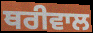
ਥਰੀਵਾਲ